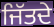
ਜਿੱਤਦੇ